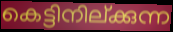
കെട്ടിനില്ക്കുന്ന